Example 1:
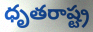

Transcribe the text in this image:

ధృతరాష్ట్ర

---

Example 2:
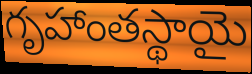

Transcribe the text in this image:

గృహాంతస్థాయై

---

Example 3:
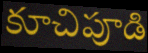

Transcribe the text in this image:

కూచిపూడి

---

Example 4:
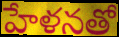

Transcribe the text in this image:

హేళనతో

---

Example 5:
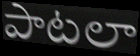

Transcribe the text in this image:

పాటలా